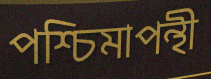
পশ্চিমাপন্থী